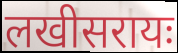
लखीसरायः